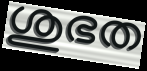
ശുഭത